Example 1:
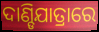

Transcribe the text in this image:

ଦାଣ୍ଡିଯାତ୍ରାରେ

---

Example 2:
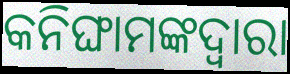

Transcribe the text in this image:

କନିଙ୍ଘାମଙ୍କଦ୍ଵାରା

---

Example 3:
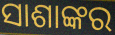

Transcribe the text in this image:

ସାଶାଙ୍କର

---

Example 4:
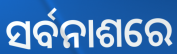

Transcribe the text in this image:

ସର୍ବନାଶରେ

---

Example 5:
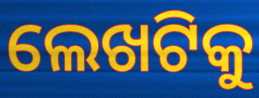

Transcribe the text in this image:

ଲେଖଟିକୁ